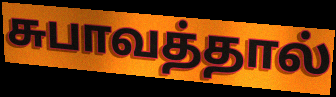
சுபாவத்தால்